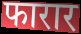
फारार